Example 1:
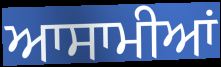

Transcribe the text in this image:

ਆਸਾਮੀਆਂ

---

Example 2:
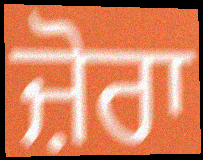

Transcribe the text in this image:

ਜ਼ੋਰਾ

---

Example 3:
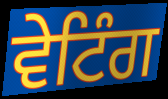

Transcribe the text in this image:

ਵੇਟਿੰਗ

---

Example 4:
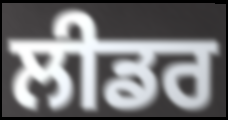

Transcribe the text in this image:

ਲੀਡਰ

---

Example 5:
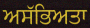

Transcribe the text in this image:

ਅਸੱਭਿਅਤਾ